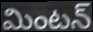
మింటన్